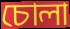
চোলা